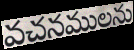
వచనములను